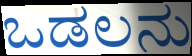
ಒಡಲನು